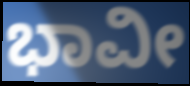
ಭಾವೀ